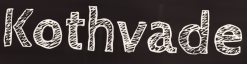
Kothvade